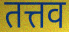
तत्तव